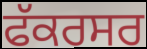
ਫੱਕਰਸਰ